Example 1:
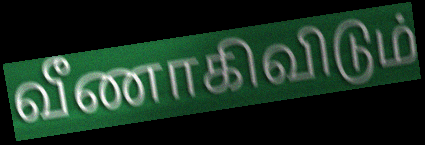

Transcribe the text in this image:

வீணாகிவிடும்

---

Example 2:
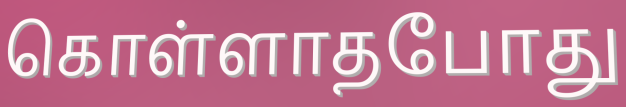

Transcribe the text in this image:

கொள்ளாதபோது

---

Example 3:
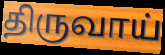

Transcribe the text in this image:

திருவாய்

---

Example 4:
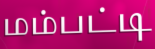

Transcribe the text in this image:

மம்பட்டி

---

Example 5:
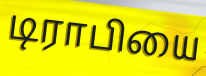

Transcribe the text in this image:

டிராபியை